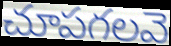
చూపగలవె